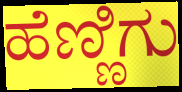
ಹೆಣ್ಣಿಗು